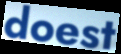
doest